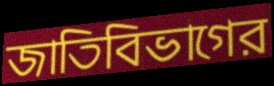
জাতিবিভাগের